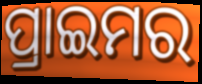
ପ୍ରାଇମର